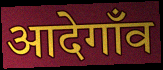
आदेगाँव